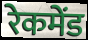
रेकमेंड